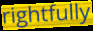
rightfully